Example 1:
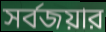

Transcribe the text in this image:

সর্বজয়ার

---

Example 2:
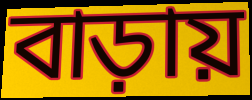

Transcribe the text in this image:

বাড়ায়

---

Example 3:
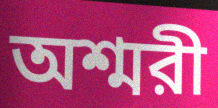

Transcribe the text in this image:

অশ্মরী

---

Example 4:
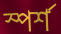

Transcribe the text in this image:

স্পর্শ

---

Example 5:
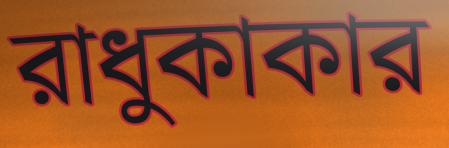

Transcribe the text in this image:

রাধুকাকার